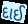
દાઈ